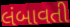
લંબાવતી